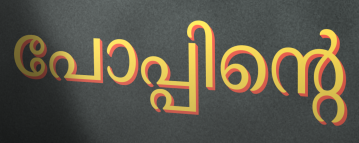
പോപ്പിന്റെ